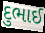
દુભાઈ